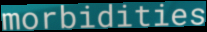
morbidities